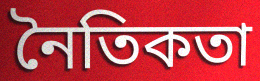
নৈতিকতা